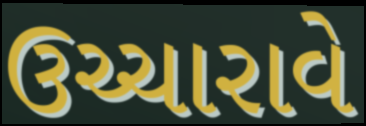
ઉચ્ચારાવે